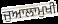
ਜੁਆਲਾਮੁਖੀ